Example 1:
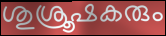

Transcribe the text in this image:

ശുശ്രൂഷകരും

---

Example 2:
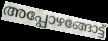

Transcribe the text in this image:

അപ്പോഴങ്ങോട്ട്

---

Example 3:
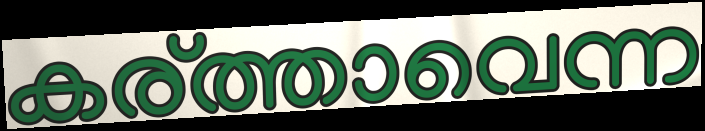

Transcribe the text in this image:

കര്ത്താവെന്ന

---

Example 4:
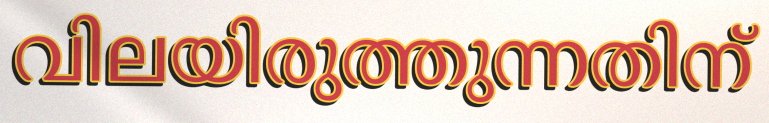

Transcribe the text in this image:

വിലയിരുത്തുന്നതിന്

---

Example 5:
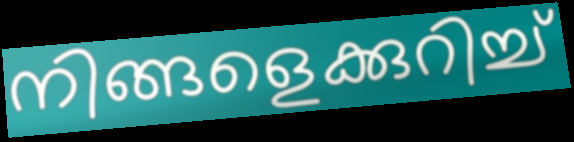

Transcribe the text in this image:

നിങ്ങളെക്കുറിച്ച്